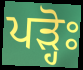
ਪੜ੍ਹੋਃ